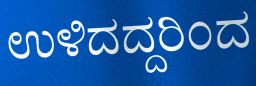
ಉಳಿದದ್ದರಿಂದ